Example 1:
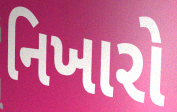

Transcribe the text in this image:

નિખારો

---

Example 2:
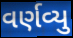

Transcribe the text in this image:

વર્ણવ્યુ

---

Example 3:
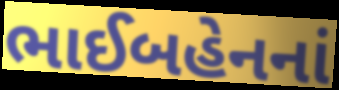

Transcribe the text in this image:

ભાઈબહેનનાં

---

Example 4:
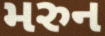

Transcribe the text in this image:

મરુન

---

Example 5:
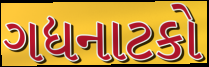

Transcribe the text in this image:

ગદ્યનાટકો